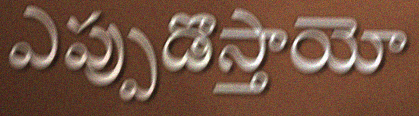
ఎప్పుడొస్తాయో